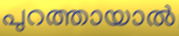
പുറത്തായാൽ